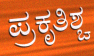
ಪ್ರಕೃತಿಶ್ಚ